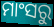
ମାଂସରୁ